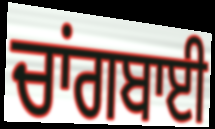
ਚਾਂਗਬਾਈ